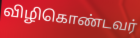
விழிகொண்டவர்